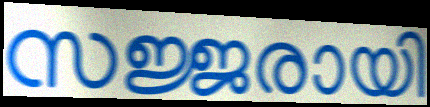
സജ്ജരായി